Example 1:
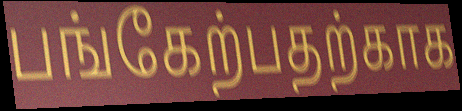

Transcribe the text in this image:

பங்கேற்பதற்காக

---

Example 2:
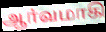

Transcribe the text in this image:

ஆர்வமாகி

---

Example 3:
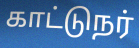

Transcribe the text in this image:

காட்டுநர்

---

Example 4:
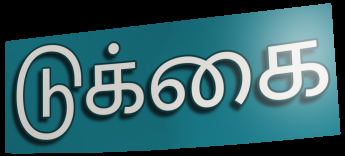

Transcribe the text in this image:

டுக்கை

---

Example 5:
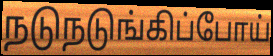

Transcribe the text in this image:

நடுநடுங்கிப்போய்